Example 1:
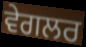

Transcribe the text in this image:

ਵੇਗਲਰ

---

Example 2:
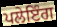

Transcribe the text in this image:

ਪਲੇਇੰਗ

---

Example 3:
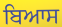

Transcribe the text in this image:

ਬਿਆਸ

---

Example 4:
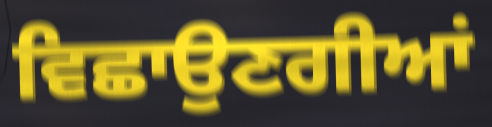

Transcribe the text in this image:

ਵਿਛਾਉਣਗੀਆਂ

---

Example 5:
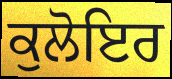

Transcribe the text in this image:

ਕੁਲੋਇਰ